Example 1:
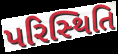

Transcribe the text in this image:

પરિસ્‍થિતિ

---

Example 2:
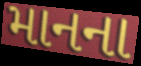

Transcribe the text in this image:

માનના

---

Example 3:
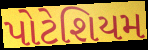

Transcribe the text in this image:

પોટેશિયમ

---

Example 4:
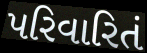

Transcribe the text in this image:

પરિવારિતં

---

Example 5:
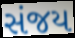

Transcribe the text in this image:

સંજય